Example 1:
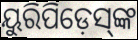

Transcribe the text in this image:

ୟୁରିପିଡ଼େସ୍‌ଙ୍କ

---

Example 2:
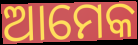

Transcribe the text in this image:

ଆମେକ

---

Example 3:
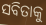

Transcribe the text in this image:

ସବିତାକୁ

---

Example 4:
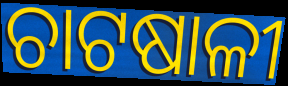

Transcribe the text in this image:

ଚାଟଷାଳୀ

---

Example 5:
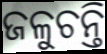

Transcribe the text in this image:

ଜଳୁଚନ୍ତି